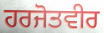
ਹਰਜੋਤਵੀਰ